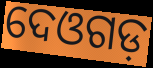
ଦେଓଗଡ଼